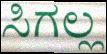
ಸಿಗಲ್ಲ